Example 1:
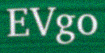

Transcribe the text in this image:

EVgo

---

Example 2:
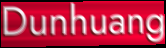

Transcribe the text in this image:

Dunhuang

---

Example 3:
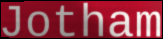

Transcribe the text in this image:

Jotham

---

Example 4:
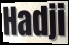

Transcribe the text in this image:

Hadji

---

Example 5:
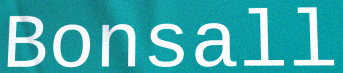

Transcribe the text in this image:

Bonsall